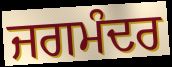
ਜਗਮੰਦਰ